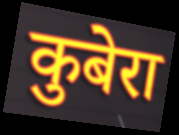
कुबेरा